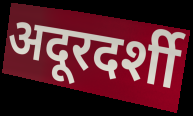
अदूरदर्शी